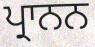
ਪ੍ਰਾਨਨ